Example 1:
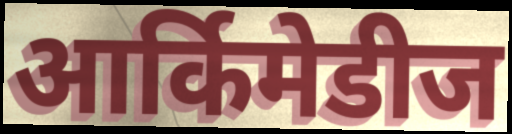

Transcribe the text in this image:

आर्किमेडीज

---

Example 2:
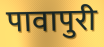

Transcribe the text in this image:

पावापुरी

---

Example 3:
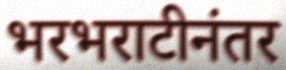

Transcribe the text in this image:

भरभराटीनंतर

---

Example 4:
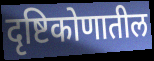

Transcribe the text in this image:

दृष्टिकोणातील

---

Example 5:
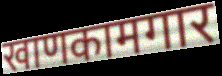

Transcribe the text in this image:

खाणकामगार